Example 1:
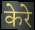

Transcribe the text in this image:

केरे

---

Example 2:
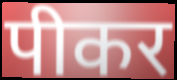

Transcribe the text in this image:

पीकर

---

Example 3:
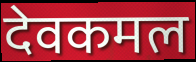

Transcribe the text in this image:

देवकमल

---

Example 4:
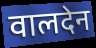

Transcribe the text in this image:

वालदेन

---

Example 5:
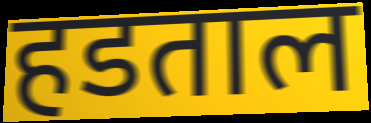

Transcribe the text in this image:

हडताल